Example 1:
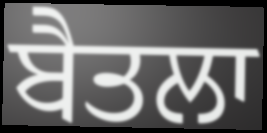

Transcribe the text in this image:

ਬੈਤਲਾ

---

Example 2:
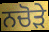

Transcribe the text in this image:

ਨਚੋੜੇ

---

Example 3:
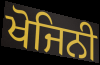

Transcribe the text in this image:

ਖੋਜਿਨੀ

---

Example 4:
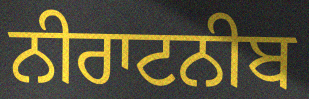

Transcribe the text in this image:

ਨੀਰਾਟਨੀਬ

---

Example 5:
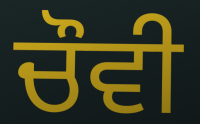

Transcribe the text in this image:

ਚੌਵੀ